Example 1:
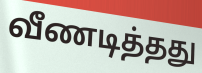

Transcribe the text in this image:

வீணடித்தது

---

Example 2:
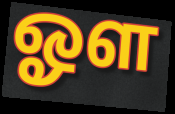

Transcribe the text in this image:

ஓள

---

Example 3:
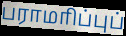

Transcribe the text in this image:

பராமரிப்புப்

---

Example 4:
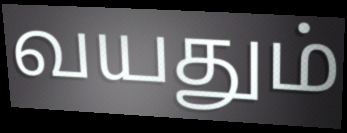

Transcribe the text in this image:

வயதும்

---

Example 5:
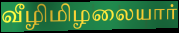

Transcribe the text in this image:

வீழிமிழலையார்